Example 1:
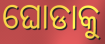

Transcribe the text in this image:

ଘୋଡାକୁ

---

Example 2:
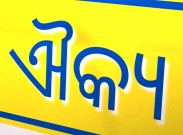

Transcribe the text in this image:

ଐକ୍ୟ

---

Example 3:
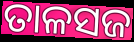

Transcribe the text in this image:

ତାଳସଜ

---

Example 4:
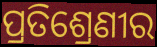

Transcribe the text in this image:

ପ୍ରତିଶ୍ରେଣୀର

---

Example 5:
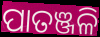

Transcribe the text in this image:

ପାତଞ୍ଜଳି